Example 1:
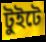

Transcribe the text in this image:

টুইটে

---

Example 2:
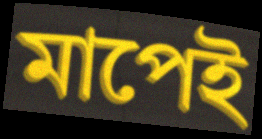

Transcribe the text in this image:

মাপেই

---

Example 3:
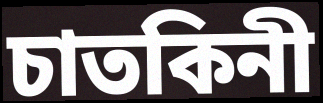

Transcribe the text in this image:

চাতকিনী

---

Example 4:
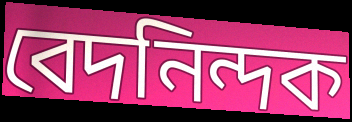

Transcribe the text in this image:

বেদনিন্দক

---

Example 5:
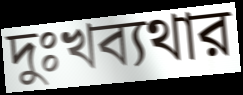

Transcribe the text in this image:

দুঃখব্যথার